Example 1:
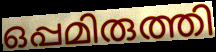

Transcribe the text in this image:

ഒപ്പമിരുത്തി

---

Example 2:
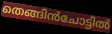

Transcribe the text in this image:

തെങ്ങിൻചോട്ടിൽ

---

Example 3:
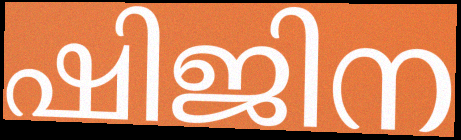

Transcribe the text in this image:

ഷിജിന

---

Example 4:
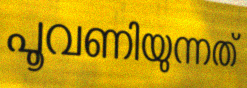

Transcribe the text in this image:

പൂവണിയുന്നത്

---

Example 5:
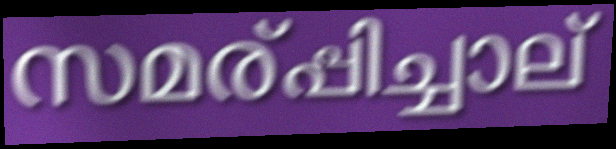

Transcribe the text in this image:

സമര്പ്പിച്ചാല്